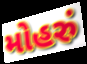
મોહરું